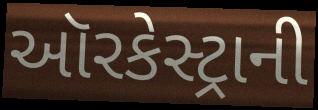
ઑરકેસ્ટ્રાની